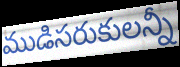
ముడిసరుకులన్నీ